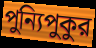
পুন্যিপুকুর